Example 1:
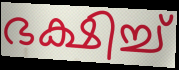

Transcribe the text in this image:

ഭക്ഷിച്ച്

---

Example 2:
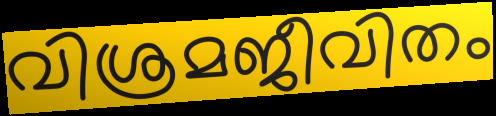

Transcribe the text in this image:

വിശ്രമജീവിതം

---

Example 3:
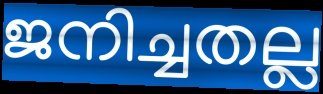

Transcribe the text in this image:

ജനിച്ചതല്ല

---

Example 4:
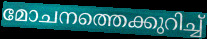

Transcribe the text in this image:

മോചനത്തെക്കുറിച്ച്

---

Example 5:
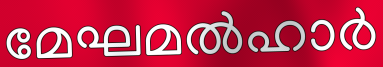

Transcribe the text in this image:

മേഘമൽഹാർ